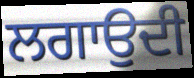
ਲਗਾਉਦੀ